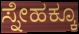
ಸ್ನೇಹಕ್ಕೂ